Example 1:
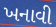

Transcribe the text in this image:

ખનાવી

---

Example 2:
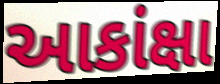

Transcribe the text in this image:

આકાંક્ષા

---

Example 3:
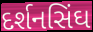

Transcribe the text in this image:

દર્શનસિંઘ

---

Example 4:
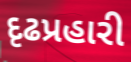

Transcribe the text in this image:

દૃઢપ્રહારી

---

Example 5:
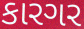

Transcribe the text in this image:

કારગર